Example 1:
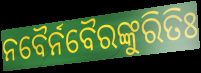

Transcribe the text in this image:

ନବୈର୍ନବୈରଙ୍କୁରିତିଃ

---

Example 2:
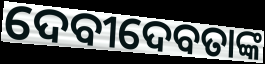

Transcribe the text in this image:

ଦେବୀଦେବତାଙ୍କ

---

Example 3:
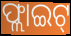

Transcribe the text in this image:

ଫ୍ଲାଇଟ୍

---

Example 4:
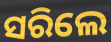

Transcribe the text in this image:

ସରିଲେ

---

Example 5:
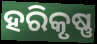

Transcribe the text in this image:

ହରିକୃଷ୍ଣ